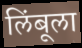
लिंबूला